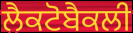
ਲੈਕਟੋਬੈਕਲੀ